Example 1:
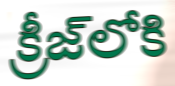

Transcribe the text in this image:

క్రీజ్‌లోకి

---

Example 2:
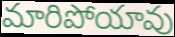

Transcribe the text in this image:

మారిపోయావు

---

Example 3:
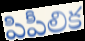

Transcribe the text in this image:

పిపీలిక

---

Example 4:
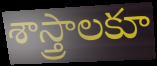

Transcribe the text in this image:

శాస్త్రాలకూ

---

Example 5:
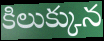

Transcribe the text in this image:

కిలుక్కున